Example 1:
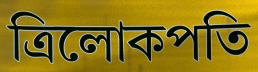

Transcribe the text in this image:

ত্রিলোকপতি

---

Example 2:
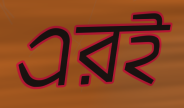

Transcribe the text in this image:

এরই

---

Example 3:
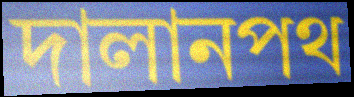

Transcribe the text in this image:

দালানপথ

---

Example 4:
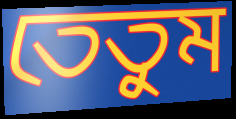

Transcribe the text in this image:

তেতুম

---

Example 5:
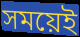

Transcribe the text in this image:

সময়েই